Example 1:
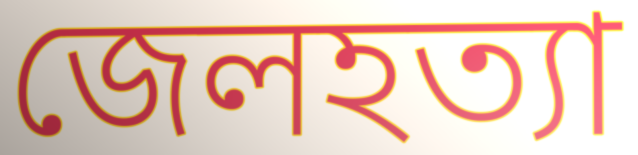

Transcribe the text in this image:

জেলহত্যা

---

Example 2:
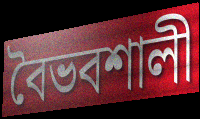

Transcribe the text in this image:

বৈভবশালী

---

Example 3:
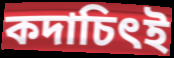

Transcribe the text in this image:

কদাচিৎই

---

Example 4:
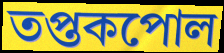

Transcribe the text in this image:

তপ্তকপোল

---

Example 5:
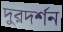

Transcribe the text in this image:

দুরদর্শন